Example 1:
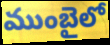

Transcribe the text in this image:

ముంబైలో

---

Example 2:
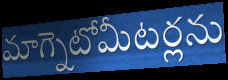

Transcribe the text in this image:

మాగ్నెటోమీటర్లను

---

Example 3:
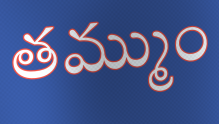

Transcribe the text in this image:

తమ్ముం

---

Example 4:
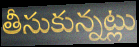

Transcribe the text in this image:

తీసుకున్నట్లు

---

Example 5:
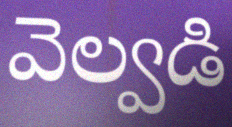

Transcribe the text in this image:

వెల్వడి